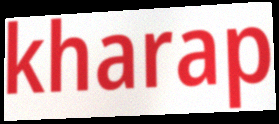
kharap